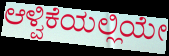
ಆಳ್ವಿಕೆಯಲ್ಲಿಯೇ